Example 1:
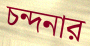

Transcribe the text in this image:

চন্দনার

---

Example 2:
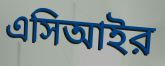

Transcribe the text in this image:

এসিআইর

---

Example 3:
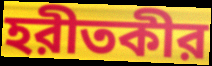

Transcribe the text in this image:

হরীতকীর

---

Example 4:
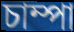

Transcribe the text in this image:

চাম্পা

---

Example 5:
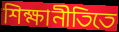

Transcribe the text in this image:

শিক্ষানীতিতে